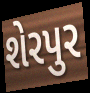
શેરપુર